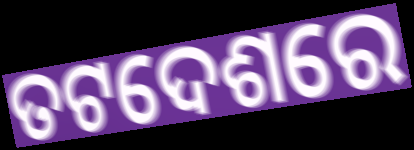
ତଟଦେଶରେ